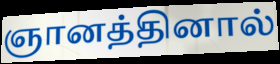
ஞானத்தினால்